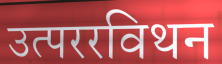
उत्पररविथन